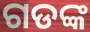
ଗଡଙ୍କ